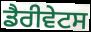
ਡੈਰੀਵੇਟਸ